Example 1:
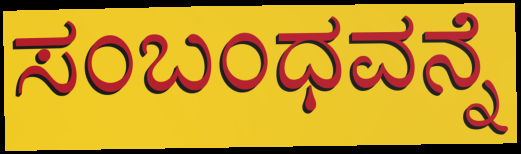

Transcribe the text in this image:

ಸಂಬಂಧವನ್ನೆ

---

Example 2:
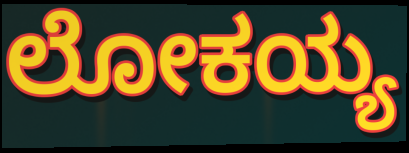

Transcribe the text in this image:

ಲೋಕಯ್ಯ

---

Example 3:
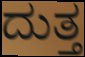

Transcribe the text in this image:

ದುತ್ತ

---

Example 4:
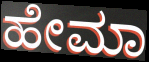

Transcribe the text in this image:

ಹೇಮಾ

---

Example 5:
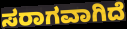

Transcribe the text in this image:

ಸರಾಗವಾಗಿದೆ